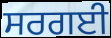
ਸਰਗਈ